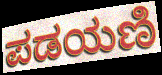
ಪಡಯಣಿ